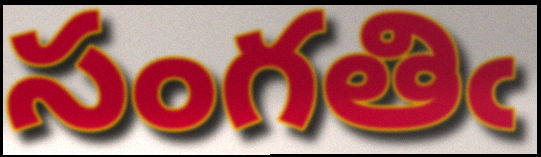
సంగతిఁ